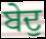
ਬੇਦੁ